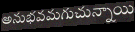
అనుభవమగుచున్నాయి